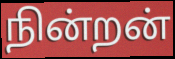
நின்றன்